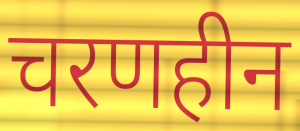
चरणहीन